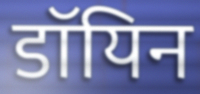
डॉयिन